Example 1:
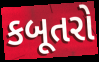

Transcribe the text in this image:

કબૂતરો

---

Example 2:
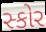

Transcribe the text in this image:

સ્કોર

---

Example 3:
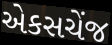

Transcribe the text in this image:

એકસચેંજ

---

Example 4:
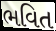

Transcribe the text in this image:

ભવિત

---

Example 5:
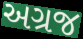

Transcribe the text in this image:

અગ્રજ